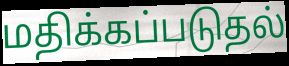
மதிக்கப்படுதல்